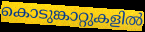
കൊടുങ്കാറ്റുകളിൽ